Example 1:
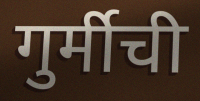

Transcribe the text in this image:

गुर्मीची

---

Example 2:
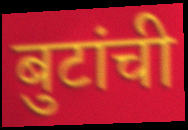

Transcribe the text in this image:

बुटांची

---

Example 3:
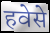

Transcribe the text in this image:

हवेसे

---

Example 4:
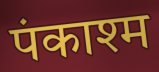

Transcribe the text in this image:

पंकाश्म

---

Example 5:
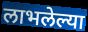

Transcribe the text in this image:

लाभलेल्या